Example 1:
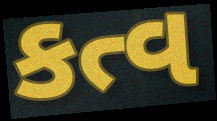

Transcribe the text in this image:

કત્વ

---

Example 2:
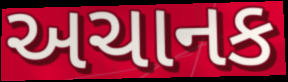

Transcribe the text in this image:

અચાનક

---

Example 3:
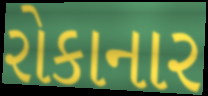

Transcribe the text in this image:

રોકાનાર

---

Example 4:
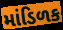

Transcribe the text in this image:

માંડિળક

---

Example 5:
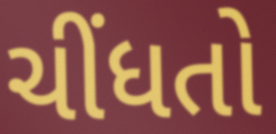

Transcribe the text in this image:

ચીંધતો